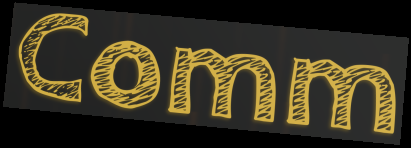
Comm